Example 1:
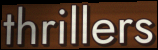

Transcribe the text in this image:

thrillers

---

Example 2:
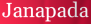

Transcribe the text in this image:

Janapada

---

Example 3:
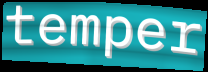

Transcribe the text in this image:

temper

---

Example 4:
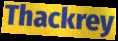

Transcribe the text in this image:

Thackrey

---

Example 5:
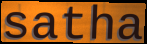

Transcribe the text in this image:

satha